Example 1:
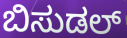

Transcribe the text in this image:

ಬಿಸುಡಲ್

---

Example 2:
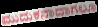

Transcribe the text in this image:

ಮುದುಕನಾದಾಗಲೂ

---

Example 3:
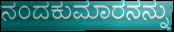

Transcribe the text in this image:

ನಂದಕುಮಾರನನ್ನು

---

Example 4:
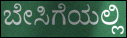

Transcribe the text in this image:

ಬೇಸಿಗೆಯಲ್ಲಿ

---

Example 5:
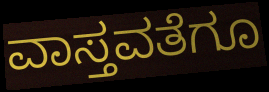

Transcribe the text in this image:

ವಾಸ್ತವತೆಗೂ